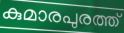
കുമാരപുരത്ത്